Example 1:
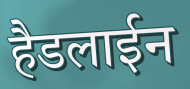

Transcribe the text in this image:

हैडलाईन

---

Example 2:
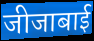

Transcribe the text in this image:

जीजाबाई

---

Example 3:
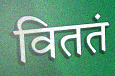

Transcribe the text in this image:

विततं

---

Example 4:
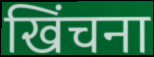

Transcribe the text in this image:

खिंचना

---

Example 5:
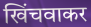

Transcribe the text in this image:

खिंचवाकर